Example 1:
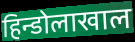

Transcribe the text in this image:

हिन्डोलाखाल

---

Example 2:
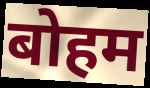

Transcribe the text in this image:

बोहम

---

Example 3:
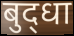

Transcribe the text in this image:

बुद्धा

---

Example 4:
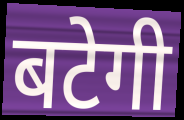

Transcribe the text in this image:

बटेगी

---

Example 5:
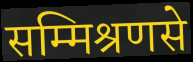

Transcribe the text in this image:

सम्मिश्रणसे